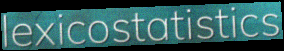
lexicostatistics